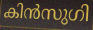
കിൻസുഗി